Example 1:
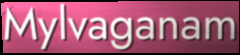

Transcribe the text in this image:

Mylvaganam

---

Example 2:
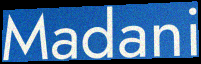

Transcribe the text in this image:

Madani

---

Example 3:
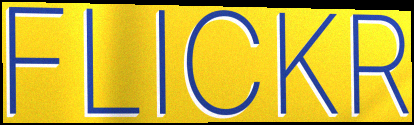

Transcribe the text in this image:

FLICKR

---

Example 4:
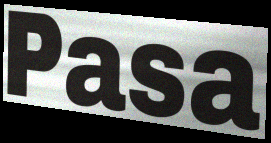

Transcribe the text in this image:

Pasa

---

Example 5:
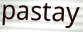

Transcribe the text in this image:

pastay